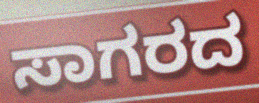
ಸಾಗರದ